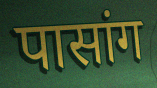
पासांग